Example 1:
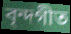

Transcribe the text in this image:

বৃন্দগীত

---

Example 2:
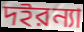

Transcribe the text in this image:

দইরন্যা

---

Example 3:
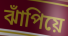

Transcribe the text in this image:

ঝাঁপিয়ে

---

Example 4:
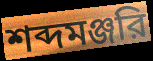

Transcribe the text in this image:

শব্দমঞ্জরি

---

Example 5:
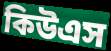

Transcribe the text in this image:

কিউএস